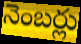
నెంబర్లు